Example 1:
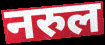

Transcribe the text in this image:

नरुल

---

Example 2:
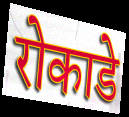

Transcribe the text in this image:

रोकाडे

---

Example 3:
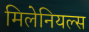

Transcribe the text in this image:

मिलेनियल्स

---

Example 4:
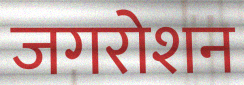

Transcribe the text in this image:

जगरोशन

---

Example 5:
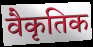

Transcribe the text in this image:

वैकृतिक